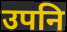
उपनि